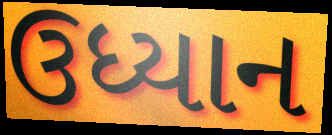
ઉધ્યાન